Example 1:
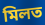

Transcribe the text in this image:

মিলত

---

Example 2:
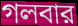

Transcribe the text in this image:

গলবার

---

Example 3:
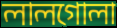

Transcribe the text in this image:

লালগোলা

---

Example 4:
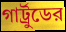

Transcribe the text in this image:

গার্ট্রুডের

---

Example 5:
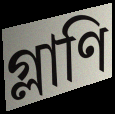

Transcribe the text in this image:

গ্লাণি